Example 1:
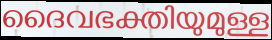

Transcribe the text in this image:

ദൈവഭക്തിയുമുള്ള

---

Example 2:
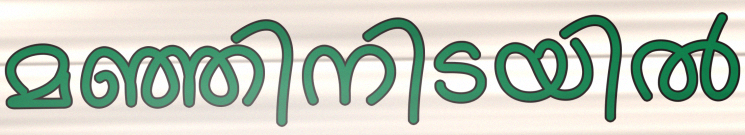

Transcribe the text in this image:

മഞ്ഞിനിടയിൽ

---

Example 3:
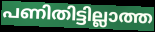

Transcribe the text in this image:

പണിതിട്ടില്ലാത്ത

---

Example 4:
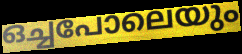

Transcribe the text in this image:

ഒച്ചപോലെയും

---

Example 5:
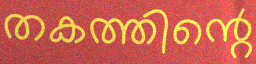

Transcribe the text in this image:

തകത്തിന്റെ